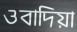
ওবাদিয়া